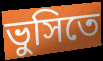
ভুসিতে